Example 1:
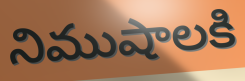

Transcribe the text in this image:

నిముషాలకి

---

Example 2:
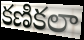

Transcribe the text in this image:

కణికలా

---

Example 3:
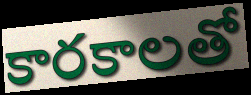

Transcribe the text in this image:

కారకాలతో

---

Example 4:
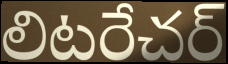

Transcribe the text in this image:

లిటరేచర్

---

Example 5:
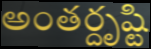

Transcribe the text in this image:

అంతర్దృష్టి